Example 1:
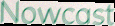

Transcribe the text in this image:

Nowcast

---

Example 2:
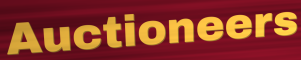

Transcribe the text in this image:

Auctioneers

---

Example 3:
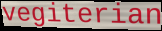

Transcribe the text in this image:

vegiterian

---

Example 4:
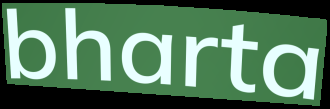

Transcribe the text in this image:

bharta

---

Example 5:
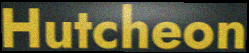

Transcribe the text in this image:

Hutcheon